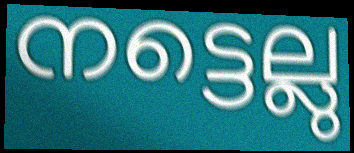
നട്ടെല്ലു